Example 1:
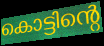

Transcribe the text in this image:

കൊട്ടിന്റെ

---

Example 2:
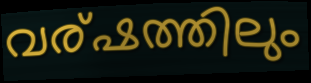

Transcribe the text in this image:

വര്ഷത്തിലും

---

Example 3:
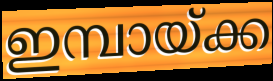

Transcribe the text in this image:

ഇമ്പായ്ക്ക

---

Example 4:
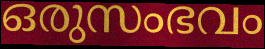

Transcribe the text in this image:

ഒരുസംഭവം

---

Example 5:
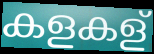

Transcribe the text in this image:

കളകള്